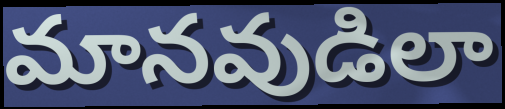
మానవుడిలా